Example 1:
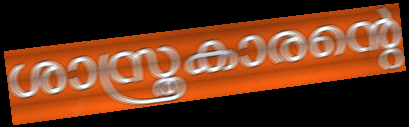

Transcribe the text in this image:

ശാസ്ത്രകാരന്റെ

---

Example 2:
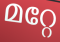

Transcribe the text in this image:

മറ്റേ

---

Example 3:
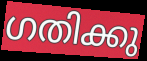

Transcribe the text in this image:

ഗതിക്കു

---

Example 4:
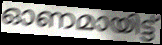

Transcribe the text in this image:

ഓണമായിട്ട്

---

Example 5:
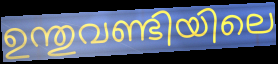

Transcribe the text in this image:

ഉന്തുവണ്ടിയിലെ